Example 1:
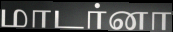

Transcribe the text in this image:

மாடர்னா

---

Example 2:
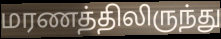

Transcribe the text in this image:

மரணத்திலிருந்து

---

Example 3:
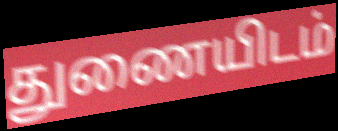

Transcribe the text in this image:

துணையிடம்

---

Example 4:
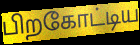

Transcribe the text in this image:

பிறகோட்டிய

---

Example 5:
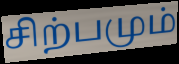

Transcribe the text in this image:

சிற்பமும்